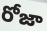
రోజా